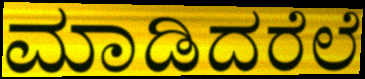
ಮಾಡಿದರೆಲೆ